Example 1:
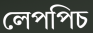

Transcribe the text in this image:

লেপপিচ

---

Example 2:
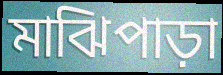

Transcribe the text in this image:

মাঝিপাড়া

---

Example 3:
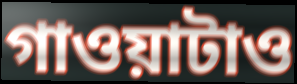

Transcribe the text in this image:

গাওয়াটাও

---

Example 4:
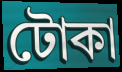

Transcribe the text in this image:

টোকা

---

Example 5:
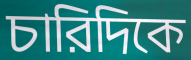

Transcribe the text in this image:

চারিদিকে